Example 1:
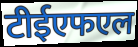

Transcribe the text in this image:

टीईएफएल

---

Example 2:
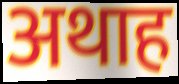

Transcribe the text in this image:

अथाह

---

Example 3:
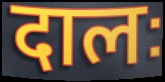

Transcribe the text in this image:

दालः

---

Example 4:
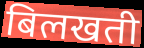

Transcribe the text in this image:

बिलखती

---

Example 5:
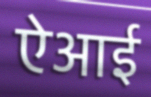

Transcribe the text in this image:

ऐआई